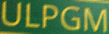
ULPGM